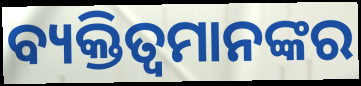
ବ୍ୟକ୍ତିତ୍ୱମାନଙ୍କର